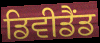
ਡਿਵੀਡੈਂਡ